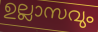
ഉല്ലാസവും